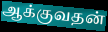
ஆக்குவதன்